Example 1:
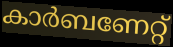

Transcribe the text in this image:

കാർബണേറ്റ്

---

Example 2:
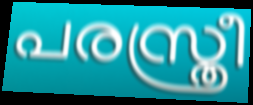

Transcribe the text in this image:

പരസ്ത്രീ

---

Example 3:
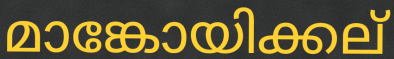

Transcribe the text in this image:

മാങ്കോയിക്കല്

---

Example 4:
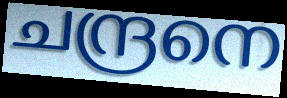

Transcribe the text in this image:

ചന്ദ്രനെ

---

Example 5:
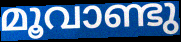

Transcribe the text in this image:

മൂവാണ്ടു